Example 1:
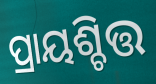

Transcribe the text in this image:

ପ୍ରାୟଶ୍ଚିତ୍ତ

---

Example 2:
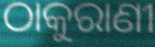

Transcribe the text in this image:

ଠାକୁରାଣୀ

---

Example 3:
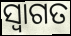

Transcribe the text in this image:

ସ୍ବାଗତ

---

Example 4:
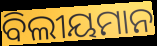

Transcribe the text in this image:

ବିଲୀୟମାନ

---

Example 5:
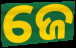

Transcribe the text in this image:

ଜେ